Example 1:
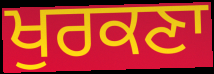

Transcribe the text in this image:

ਖੁਰਕਣਾ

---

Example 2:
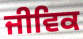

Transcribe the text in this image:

ਜੀਵਿਕ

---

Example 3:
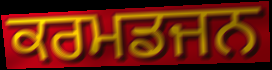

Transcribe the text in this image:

ਕਰਮਡਜਨ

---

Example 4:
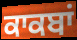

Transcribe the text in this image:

ਕਾਕਬਾਂ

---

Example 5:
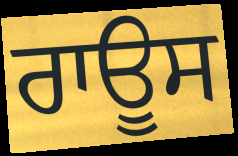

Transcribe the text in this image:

ਰਾਊਸ